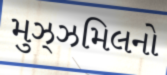
મુઝ્ઝમિલનો